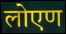
लोएण